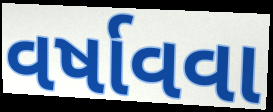
વર્ષાવવા